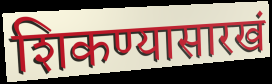
शिकण्यासारखं